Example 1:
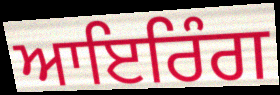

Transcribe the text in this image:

ਆਇਰਿੰਗ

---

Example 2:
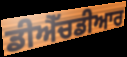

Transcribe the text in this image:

ਡੀਐੱਚਡੀਆਰ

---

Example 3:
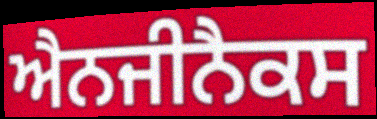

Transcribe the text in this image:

ਐਨਜੀਨੈਕਸ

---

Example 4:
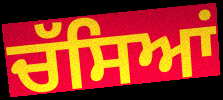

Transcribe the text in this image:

ਚੱਸਿਆਂ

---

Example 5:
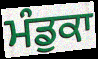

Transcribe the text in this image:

ਮੰਡੁਕਾ